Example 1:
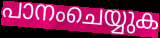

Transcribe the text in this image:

പാനംചെയ്യുക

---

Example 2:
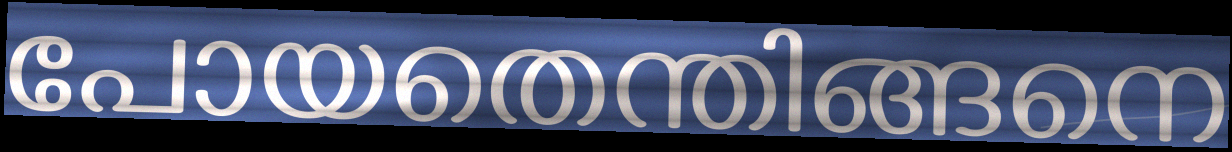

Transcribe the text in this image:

പോയതെന്തിങ്ങനെ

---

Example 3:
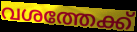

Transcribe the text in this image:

വശത്തേക്ക്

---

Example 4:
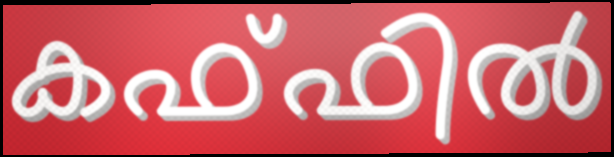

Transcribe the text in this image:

കഫ്ഫിൽ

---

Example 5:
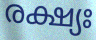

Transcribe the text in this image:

രക്ഷ്യഃ